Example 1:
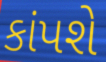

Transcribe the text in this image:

કાંપશે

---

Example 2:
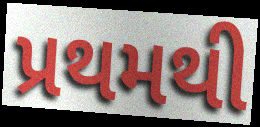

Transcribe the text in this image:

પ્રથમથી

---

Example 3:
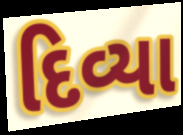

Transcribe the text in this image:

દિવ્યા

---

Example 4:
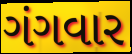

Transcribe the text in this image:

ગંગવાર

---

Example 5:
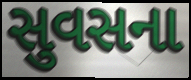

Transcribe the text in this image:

સુવસના